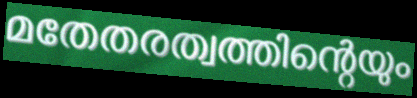
മതേതരത്വത്തിന്റെയും